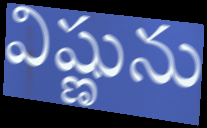
విష్ణును